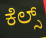
ಕೆಲ್ಸ್